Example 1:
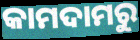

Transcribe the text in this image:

କାମଦାମରୁ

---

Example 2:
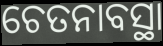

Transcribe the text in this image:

ଚେତନାବସ୍ଥା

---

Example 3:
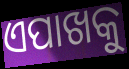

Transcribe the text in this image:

ଏପାଖକୁ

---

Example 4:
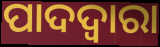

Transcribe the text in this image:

ପାଦଦ୍ଵାରା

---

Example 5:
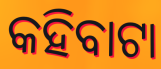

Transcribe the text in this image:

କହିବାଟା